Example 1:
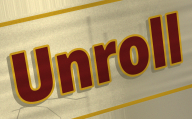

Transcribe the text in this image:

Unroll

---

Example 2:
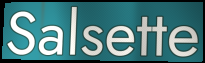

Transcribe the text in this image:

Salsette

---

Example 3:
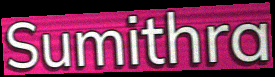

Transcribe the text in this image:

Sumithra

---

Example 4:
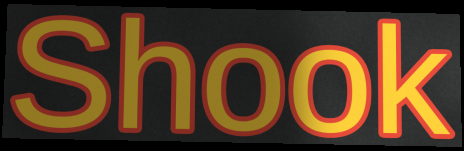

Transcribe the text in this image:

Shook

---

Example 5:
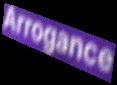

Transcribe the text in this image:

Arrogance